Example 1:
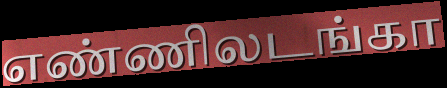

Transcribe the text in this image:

எண்ணிலடங்கா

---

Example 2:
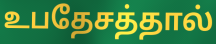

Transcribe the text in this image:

உபதேசத்தால்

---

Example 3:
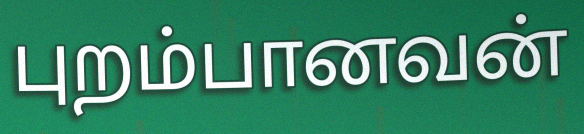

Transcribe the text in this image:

புறம்பானவன்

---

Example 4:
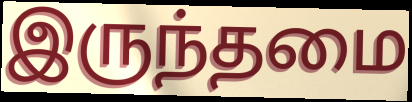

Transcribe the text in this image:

இருந்தமை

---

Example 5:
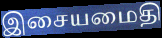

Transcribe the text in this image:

இசையமைதி